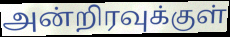
அன்றிரவுக்குள்